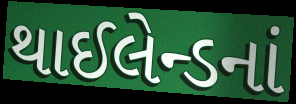
થાઈલેન્ડનાં